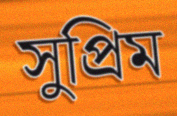
সুপ্রিম